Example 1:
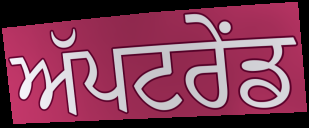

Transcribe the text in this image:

ਅੱਪਟਰੇਂਡ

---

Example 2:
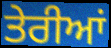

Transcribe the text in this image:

ਤੇਰੀਆਂ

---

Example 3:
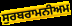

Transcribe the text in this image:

ਸੁਰਬਰਾਮਨੀਅਮ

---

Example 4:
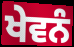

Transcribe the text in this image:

ਖੇਵਨੰ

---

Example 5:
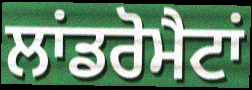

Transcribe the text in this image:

ਲਾਂਡਰੋਮੈਟਾਂ